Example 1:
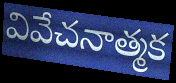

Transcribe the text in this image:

వివేచనాత్మక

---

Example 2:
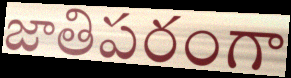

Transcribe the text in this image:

జాతిపరంగా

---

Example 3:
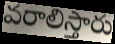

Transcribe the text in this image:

వరాలిస్తారు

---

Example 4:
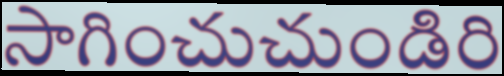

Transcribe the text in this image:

సాగించుచుండిరి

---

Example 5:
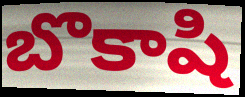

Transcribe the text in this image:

బొకాషి